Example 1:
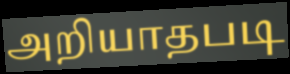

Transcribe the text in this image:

அறியாதபடி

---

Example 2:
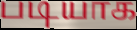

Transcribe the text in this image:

படியாக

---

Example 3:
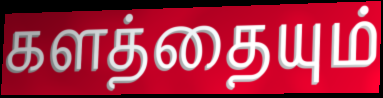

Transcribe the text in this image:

களத்தையும்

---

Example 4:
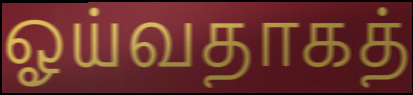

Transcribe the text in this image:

ஓய்வதாகத்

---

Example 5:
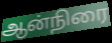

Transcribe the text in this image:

ஆன்நிரை